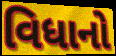
વિધાનો